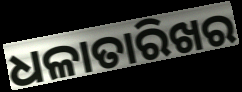
ଧଳାତାରିଖର